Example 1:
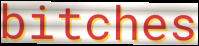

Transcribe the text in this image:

bitches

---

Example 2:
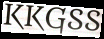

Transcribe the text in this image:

KKGSS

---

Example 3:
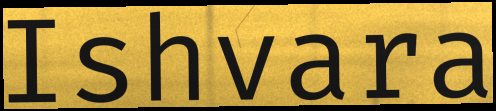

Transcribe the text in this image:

Ishvara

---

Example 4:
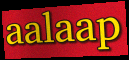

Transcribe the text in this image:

aalaap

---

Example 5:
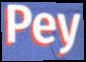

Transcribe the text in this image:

Pey